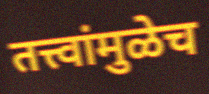
तत्त्वांमुळेच